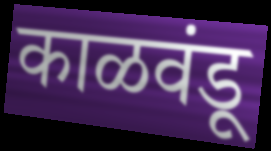
काळवंडू